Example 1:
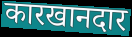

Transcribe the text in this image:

कारखानदार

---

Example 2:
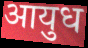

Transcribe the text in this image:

आयुध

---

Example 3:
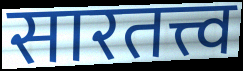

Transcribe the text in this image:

सारतत्त्व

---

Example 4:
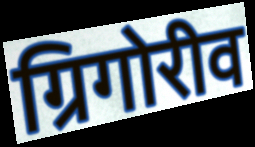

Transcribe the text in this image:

ग्रिगोरीव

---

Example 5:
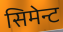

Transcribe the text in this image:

सिमेन्ट